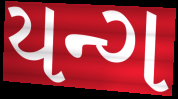
યન્ગ